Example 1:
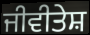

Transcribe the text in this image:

ਜੀਵੀਤੇਸ਼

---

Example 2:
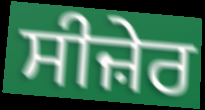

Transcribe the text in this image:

ਸੀਜ਼ੇਰ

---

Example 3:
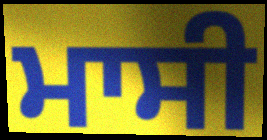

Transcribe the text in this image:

ਮਾਸੀ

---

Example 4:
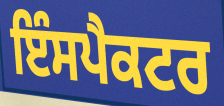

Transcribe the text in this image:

ਇੰਸਪੈਕਟਰ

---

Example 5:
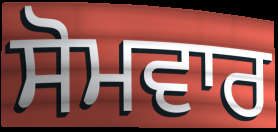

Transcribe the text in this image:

ਸੋਮਵਾਰ